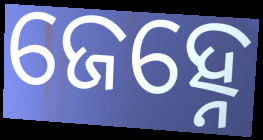
ଜେହ୍ନେ